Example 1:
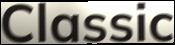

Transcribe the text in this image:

Classic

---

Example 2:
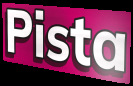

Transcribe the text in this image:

Pista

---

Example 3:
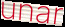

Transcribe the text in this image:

unar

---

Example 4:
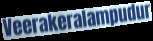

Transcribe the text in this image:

Veerakeralampudur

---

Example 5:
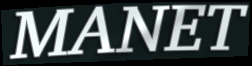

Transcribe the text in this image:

MANET